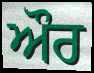
ਔਰ